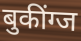
बुकींग्ज